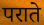
पराते